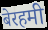
बेरहमी